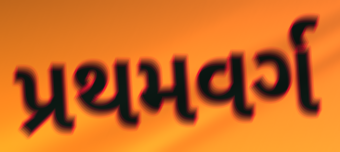
પ્રથમવર્ગ